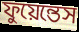
ফুয়েন্তেস